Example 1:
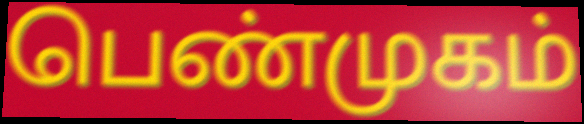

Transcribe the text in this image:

பெண்முகம்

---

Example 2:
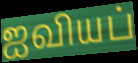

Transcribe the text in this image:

ஐவியப்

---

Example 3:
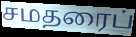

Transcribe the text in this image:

சமதரைப்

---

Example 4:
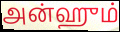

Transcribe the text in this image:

அன்ஹும்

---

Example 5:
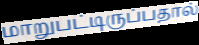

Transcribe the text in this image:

மாறுபட்டிருப்பதால்